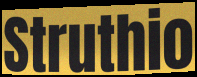
Struthio